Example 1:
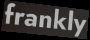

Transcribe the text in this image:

frankly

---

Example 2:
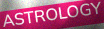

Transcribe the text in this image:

ASTROLOGY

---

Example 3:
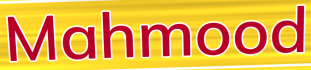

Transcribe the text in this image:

Mahmood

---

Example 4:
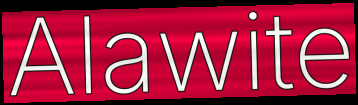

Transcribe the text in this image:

Alawite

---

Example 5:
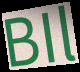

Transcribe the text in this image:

BIl